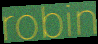
robin